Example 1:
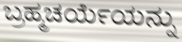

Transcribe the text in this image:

ಬ್ರಹ್ಮಚರ್ಯೆಯನ್ನು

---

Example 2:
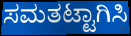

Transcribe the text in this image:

ಸಮತಟ್ಟಾಗಿಸಿ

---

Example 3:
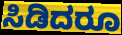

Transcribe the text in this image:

ಸಿಡಿದರೂ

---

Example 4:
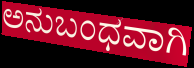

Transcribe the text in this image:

ಅನುಬಂಧವಾಗಿ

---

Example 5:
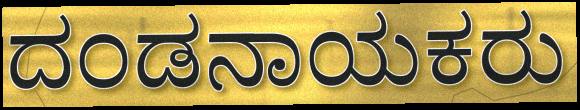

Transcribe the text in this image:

ದಂಡನಾಯಕರು